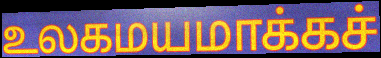
உலகமயமாக்கச்